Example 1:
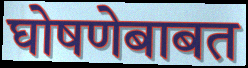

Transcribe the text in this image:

घोषणेबाबत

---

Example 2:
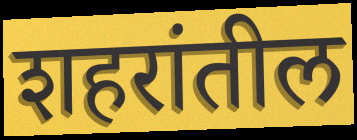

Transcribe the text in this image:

शहरांतील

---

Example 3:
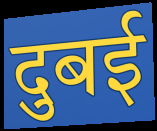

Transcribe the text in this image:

दुबई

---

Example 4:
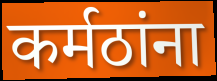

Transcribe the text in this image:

कर्मठांना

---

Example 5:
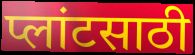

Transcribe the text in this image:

प्लांटसाठी